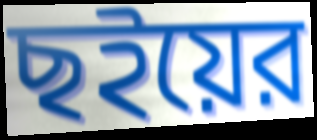
ছইয়ের